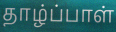
தாழ்ப்பாள்